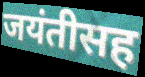
जयंतीसह